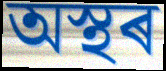
অস্থৰ